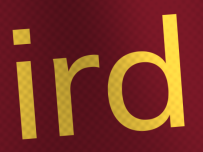
ird